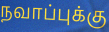
நவாப்புக்கு